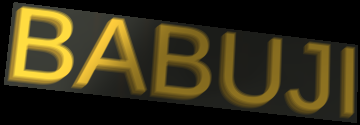
BABUJI